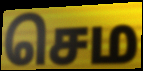
செம